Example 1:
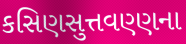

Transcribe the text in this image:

કસિણસુત્તવણ્ણના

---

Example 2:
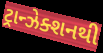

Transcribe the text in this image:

ટ્રાન્ઝેક્શનથી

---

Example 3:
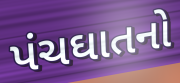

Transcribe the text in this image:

પંચઘાતનો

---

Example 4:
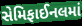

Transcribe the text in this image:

સેમિફાઈનલમાં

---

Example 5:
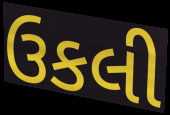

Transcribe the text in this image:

ઉકલી